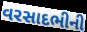
વરસાદભીની